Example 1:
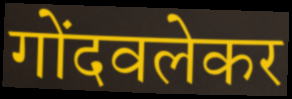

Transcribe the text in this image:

गोंदवलेकर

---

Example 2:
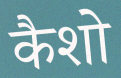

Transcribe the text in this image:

कैशो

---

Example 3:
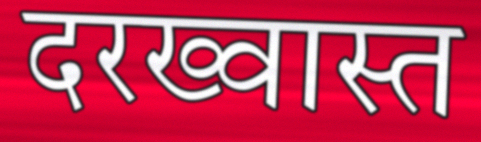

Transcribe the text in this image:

दरख्वास्त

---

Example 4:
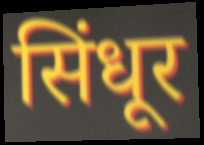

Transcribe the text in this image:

सिंधूर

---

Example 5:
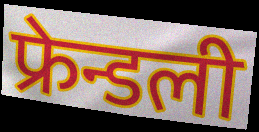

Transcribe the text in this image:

फ्रेन्डली